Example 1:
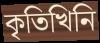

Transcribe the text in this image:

কৃতিখিনি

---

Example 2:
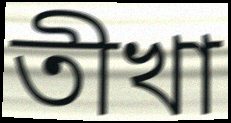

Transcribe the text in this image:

তীখা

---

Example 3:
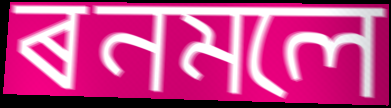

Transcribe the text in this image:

ৰনমলে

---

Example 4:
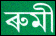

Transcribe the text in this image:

ৰুমী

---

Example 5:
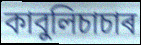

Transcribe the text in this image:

কাবুলিচাচাৰ